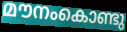
മൗനംകൊണ്ടു